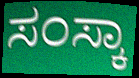
ಸಂಸ್ಕಾ